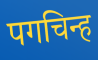
पगचिन्ह